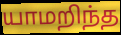
யாமறிந்த